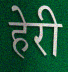
हेरी